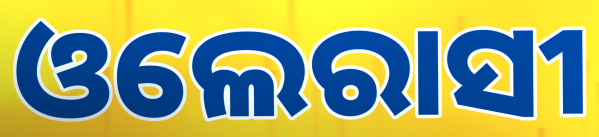
ଓଲେରାସୀ